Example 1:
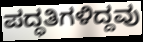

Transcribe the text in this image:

ಪದ್ಧತಿಗಳಿದ್ದವು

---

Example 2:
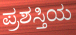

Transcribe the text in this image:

ಪ್ರಶಸ್ತಿಯ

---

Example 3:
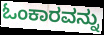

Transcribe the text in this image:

ಓಂಕಾರವನ್ನು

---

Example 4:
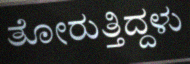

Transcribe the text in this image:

ತೋರುತ್ತಿದ್ದಳು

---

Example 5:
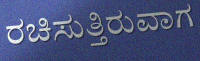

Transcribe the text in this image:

ರಚಿಸುತ್ತಿರುವಾಗ